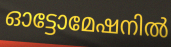
ഓട്ടോമേഷനിൽ